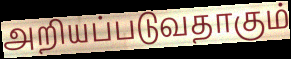
அறியப்படுவதாகும்